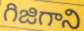
గిజిగాని